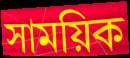
সাময়িক